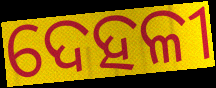
ଦେହଳୀ